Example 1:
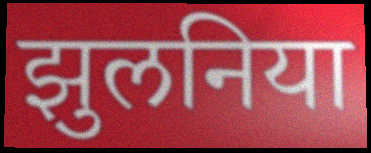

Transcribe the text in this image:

झुलनिया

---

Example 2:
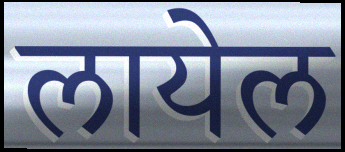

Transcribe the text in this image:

लायेल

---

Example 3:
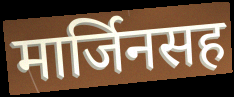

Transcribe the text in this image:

मार्जिनसह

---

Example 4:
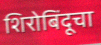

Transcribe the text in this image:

शिरोबिंदूचा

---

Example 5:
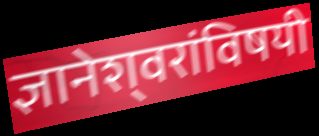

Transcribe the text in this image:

ज्ञानेश्वरांविषयी